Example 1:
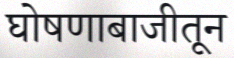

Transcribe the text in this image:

घोषणाबाजीतून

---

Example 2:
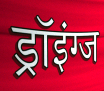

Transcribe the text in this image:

ड्रॉइंग्ज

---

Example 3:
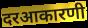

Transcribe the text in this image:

दरआकारणी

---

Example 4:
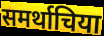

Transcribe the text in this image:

समर्थाचिया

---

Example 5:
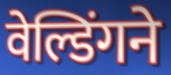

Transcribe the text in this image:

वेल्डिंगने